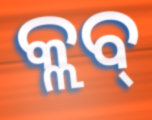
କ୍ଲବ୍